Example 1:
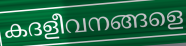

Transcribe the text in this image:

കദളീവനങ്ങളെ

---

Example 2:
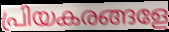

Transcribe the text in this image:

പ്രിയകരങ്ങളേ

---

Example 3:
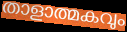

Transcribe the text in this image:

താളാത്മകവും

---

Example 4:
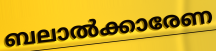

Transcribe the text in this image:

ബലാൽക്കാരേണ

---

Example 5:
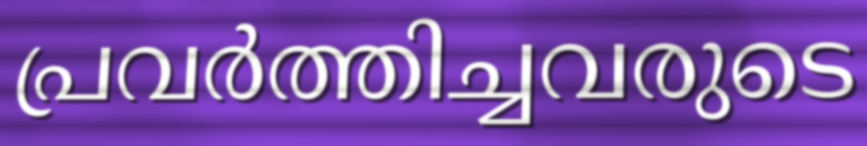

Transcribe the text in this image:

പ്രവർത്തിച്ചവരുടെ